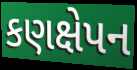
કણક્ષેપન